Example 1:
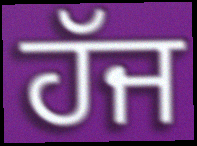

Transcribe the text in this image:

ਹੱਜ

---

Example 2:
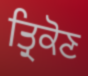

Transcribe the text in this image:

ਤ੍ਰਿਕੋਣ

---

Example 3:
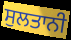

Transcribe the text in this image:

ਸੁਲਤਾਨੀ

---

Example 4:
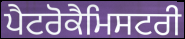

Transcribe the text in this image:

ਪੈਟਰੋਕੈਮਿਸਟਰੀ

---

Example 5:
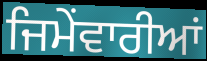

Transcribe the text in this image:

ਜਿਮੇਂਵਾਰੀਆਂ